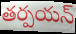
తర్పయన్